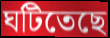
ঘটিতেছে